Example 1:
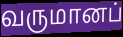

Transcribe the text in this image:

வருமானப்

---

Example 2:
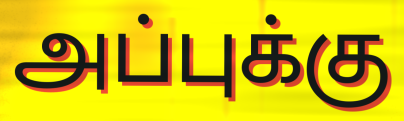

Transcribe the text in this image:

அப்புக்கு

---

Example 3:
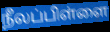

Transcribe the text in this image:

நீலப்பிள்ளை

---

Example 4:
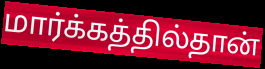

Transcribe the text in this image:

மார்க்கத்தில்தான்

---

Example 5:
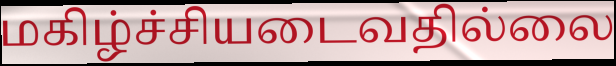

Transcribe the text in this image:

மகிழ்ச்சியடைவதில்லை